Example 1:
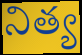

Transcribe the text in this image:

నిత్య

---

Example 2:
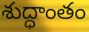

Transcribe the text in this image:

శుద్ధాంతం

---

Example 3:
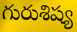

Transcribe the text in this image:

గురుశిష్య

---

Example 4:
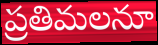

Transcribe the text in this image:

ప్రతిమలనూ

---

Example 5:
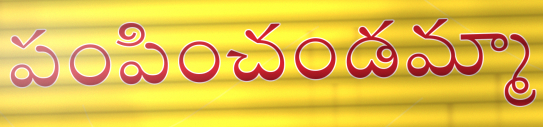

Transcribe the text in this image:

పంపించండమ్మా